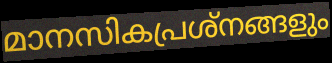
മാനസികപ്രശ്നങ്ങളും